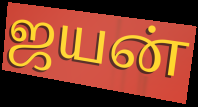
ஜயன்